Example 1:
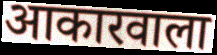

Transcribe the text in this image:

आकारवाला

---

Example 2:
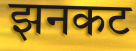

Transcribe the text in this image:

झनकट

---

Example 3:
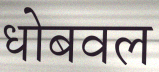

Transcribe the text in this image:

धोबवल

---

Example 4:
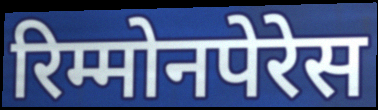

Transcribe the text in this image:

रिम्मोनपेरेस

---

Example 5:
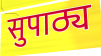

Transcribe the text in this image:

सुपाठ्य